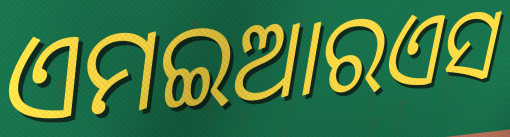
ଏମଇଆରଏସ